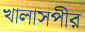
খালাসপীর